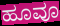
ಹೂವೂ